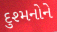
દુશ્મનોને